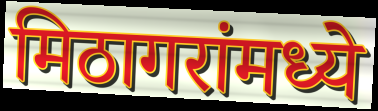
मिठागरांमध्ये